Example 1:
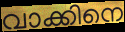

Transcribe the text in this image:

വാക്കിനെ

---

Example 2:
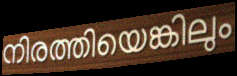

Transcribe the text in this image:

നിരത്തിയെങ്കിലും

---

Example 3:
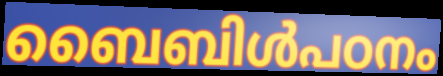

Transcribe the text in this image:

ബൈബിൾപഠനം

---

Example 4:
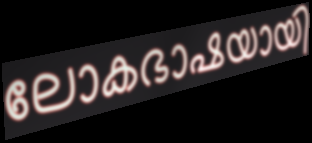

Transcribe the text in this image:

ലോകഭാഷയായി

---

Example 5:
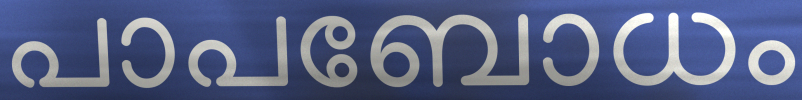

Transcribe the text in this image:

പാപബോധം